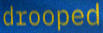
drooped